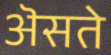
ऄसते